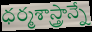
ధర్మశాస్త్రాన్నే